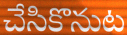
చేసికొనుట